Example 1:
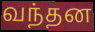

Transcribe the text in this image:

வந்தன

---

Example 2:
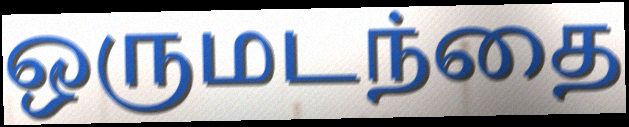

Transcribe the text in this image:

ஒருமடந்தை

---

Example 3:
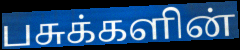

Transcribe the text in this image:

பசுக்களின்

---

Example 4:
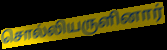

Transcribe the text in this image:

சொல்லியருளினார்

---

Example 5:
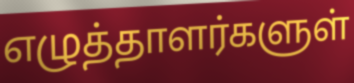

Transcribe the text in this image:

எழுத்தாளர்களுள்